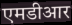
एमडीआर